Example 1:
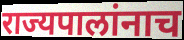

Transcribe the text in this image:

राज्यपालांनाच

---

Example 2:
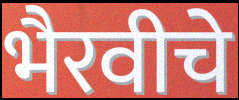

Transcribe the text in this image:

भैरवीचे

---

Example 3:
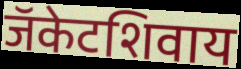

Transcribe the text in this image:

जॅकेटशिवाय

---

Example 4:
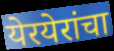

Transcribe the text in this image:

येरयेरांचा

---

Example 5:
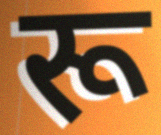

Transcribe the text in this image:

रू